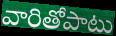
వారితోపాటు